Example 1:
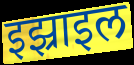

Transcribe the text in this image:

इझ्राइल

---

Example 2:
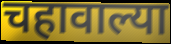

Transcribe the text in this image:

चहावाल्या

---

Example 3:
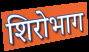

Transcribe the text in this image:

शिरोभाग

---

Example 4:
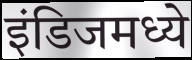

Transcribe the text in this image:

इंडिजमध्ये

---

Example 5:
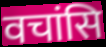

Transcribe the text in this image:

वचांसि